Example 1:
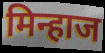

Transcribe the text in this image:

मिन्हाज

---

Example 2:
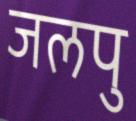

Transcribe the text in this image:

जलपु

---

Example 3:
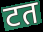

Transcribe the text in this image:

टत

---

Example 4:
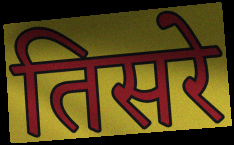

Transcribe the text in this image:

तिसरे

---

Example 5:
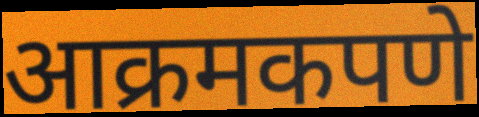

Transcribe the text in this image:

आक्रमकपणे